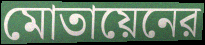
মোতায়েনের